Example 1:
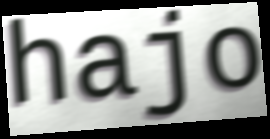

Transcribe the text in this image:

hajo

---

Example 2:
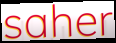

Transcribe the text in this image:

saher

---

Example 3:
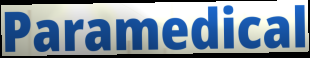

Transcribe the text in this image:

Paramedical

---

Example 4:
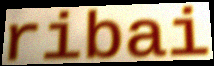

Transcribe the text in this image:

ribai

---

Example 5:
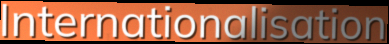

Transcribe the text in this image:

Internationalisation